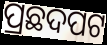
ପ୍ରଛଦପଟ